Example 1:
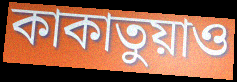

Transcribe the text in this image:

কাকাতুয়াও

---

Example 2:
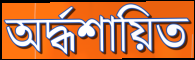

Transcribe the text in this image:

অর্দ্ধশায়িত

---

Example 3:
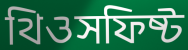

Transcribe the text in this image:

থিওসফিষ্ট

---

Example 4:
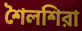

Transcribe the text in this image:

শৈলশিরা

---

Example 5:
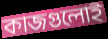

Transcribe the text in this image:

কাজগুলোই